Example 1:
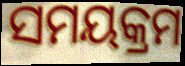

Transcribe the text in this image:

ସମୟକ୍ରମ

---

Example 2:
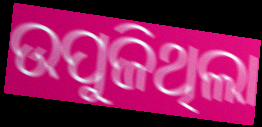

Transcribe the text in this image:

ଉପୁଜିଥିଲା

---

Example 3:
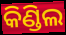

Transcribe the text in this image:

କିଣ୍ଡିଲ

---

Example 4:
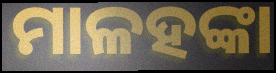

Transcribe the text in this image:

ମାଳହଙ୍କା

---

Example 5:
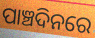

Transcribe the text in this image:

ପାଞ୍ଚଦିନରେ